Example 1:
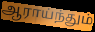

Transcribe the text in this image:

ஆராய்ந்தும்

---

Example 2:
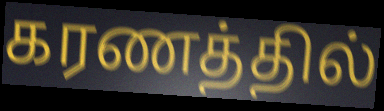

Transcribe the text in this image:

கரணத்தில்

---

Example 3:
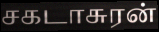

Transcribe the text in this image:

சகடாசுரன்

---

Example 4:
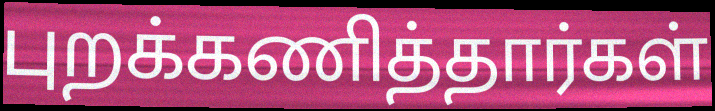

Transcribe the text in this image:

புறக்கணித்தார்கள்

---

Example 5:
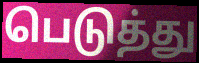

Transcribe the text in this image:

பெடுத்து